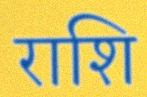
राशि